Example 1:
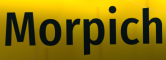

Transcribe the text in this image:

Morpich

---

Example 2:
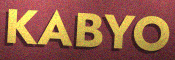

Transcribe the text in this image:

KABYO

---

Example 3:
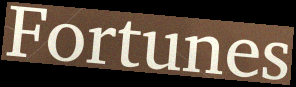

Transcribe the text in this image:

Fortunes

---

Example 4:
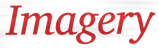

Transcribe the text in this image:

Imagery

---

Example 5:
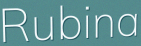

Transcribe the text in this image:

Rubina